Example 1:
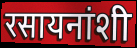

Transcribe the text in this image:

रसायनांशी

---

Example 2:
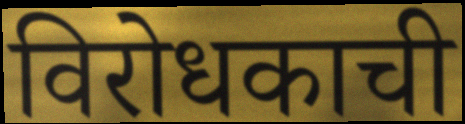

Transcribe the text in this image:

विरोधकाची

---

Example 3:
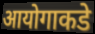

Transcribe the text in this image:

आयोगाकडे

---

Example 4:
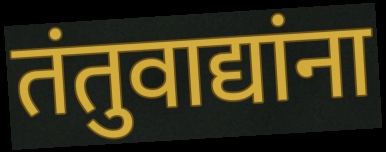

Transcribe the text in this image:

तंतुवाद्यांना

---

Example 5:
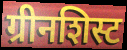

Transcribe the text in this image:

ग्रीनशिस्ट